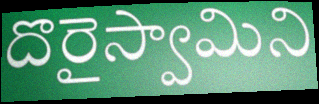
దొరైస్వామిని